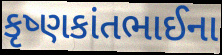
કૃષ્ણકાંતભાઈના